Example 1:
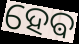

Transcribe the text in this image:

ହେଵ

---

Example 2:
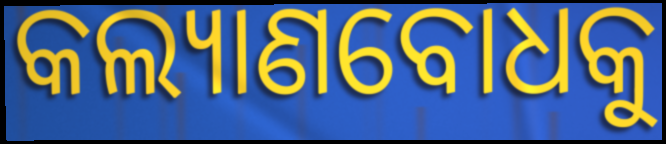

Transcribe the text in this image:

କଲ୍ୟାଣବୋଧକୁ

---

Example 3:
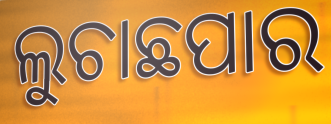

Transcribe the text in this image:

ଲୁଚାଛପାର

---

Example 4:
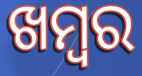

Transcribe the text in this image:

ଖମ୍ୱର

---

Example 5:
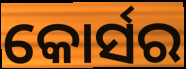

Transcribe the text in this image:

କୋର୍ସର